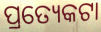
ପ୍ରତ୍ୟେକଟା